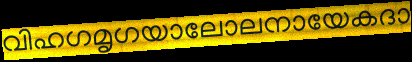
വിഹഗമൃഗയാലോലനായേകദാ